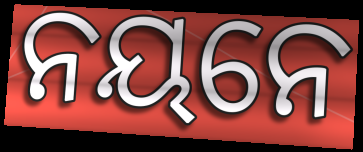
ନୟନେ